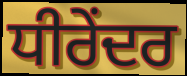
ਧੀਰੇਂਦਰ